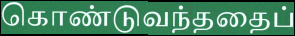
கொண்டுவந்ததைப்